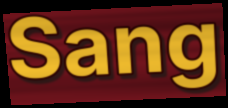
Sang